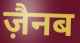
ज़ैनब